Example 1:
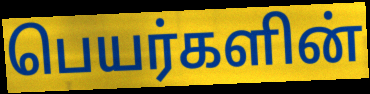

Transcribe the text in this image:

பெயர்களின்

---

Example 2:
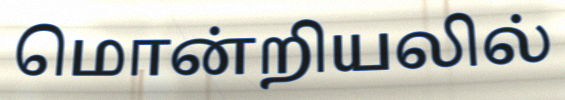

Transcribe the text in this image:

மொன்றியலில்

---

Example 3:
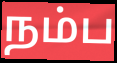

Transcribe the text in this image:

நம்ப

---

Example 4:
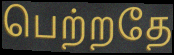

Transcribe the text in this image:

பெற்றதே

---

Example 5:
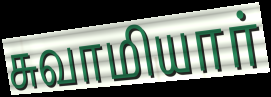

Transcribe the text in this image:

சுவாமியார்